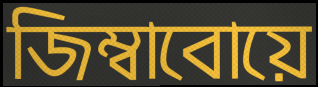
জিম্বাবোয়ে